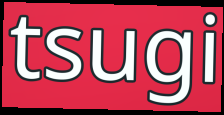
tsugi